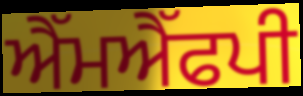
ਐੱਮਐੱਫਪੀ